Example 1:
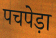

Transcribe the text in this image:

पचपेड़ा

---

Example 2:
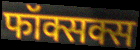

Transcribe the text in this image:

फॉक्सक्स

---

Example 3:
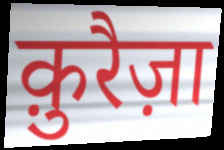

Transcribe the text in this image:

क़ुरैज़ा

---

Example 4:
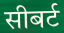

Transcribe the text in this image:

सीबर्ट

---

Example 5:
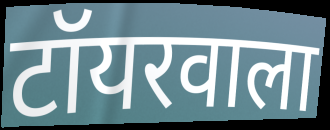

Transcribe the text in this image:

टॉयरवाला